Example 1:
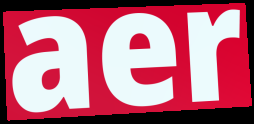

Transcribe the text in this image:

aer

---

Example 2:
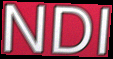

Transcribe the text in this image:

NDI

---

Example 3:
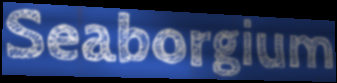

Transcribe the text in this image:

Seaborgium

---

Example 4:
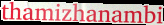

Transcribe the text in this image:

thamizhanambi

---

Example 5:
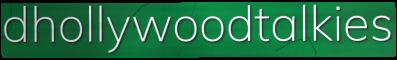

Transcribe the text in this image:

dhollywoodtalkies